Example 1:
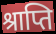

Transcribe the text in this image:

श्राप्ति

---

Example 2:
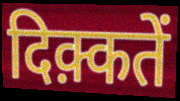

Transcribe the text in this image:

दिक़्कतें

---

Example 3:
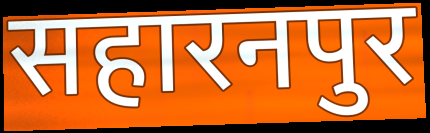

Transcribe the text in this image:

सहारनपुर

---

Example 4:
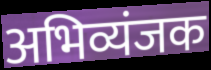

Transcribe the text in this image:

अभिव्यंजक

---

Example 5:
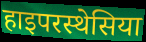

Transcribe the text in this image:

हाइपरस्थेसिया